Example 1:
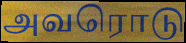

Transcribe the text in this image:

அவரொடு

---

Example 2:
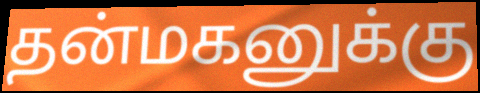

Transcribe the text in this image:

தன்மகனுக்கு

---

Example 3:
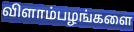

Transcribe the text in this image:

விளாம்பழங்களை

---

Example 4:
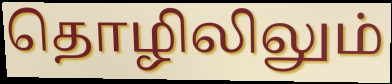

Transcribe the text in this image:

தொழிலிலும்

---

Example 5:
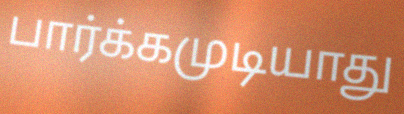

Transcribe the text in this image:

பார்க்கமுடியாது